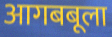
आगबबूला